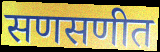
सणसणीत